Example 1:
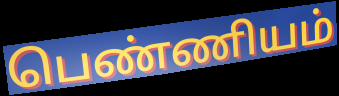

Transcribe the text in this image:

பெண்ணியம்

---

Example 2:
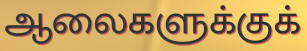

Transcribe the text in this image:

ஆலைகளுக்குக்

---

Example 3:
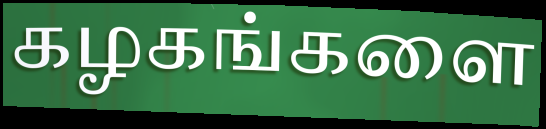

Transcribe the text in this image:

கழகங்களை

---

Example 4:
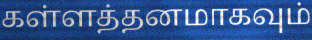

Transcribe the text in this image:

கள்ளத்தனமாகவும்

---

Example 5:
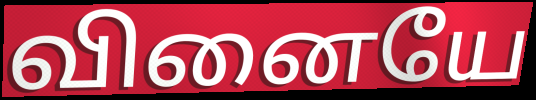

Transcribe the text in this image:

வினையே